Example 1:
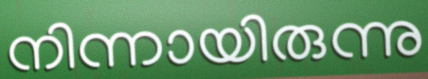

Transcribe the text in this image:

നിന്നായിരുന്നു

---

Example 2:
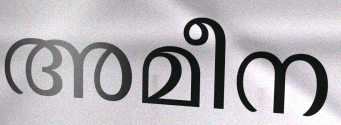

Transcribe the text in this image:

അമീന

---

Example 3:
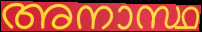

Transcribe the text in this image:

അനാസ്ഥ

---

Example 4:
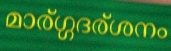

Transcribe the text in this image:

മാര്ഗ്ഗദര്ശനം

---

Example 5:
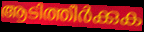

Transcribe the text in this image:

ആടിത്തീർക്കുക